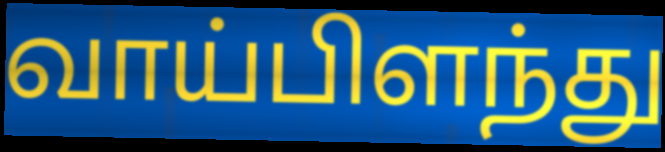
வாய்பிளந்து